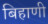
बिहाणी